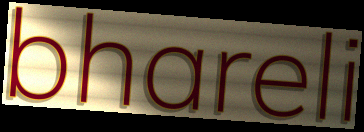
bhareli